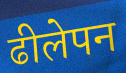
ढीलेपन